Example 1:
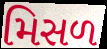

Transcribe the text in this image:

મિસળ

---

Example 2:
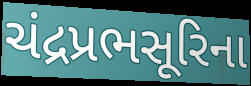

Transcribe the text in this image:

ચંદ્રપ્રભસૂરિના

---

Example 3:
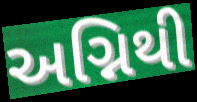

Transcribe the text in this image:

અગ્નિથી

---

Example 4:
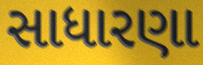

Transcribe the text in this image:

સાધારણા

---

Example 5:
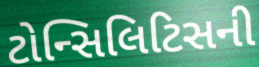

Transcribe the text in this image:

ટોન્સિલિટિસની